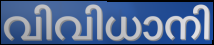
വിവിധാനി